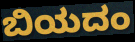
ಬಿಯದಂ